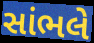
સાંભલે